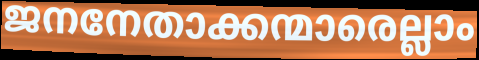
ജനനേതാക്കന്മാരെല്ലാം